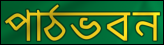
পাঠভবন